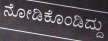
ನೋಡಿಕೊಂಡಿದ್ದು